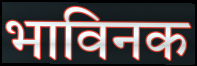
भाविनक